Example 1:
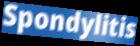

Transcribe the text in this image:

Spondylitis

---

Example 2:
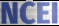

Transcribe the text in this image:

NCEI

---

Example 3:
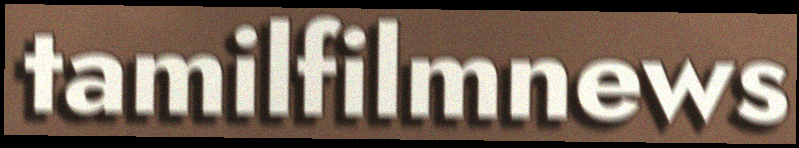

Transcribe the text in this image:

tamilfilmnews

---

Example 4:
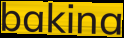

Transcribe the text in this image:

bakina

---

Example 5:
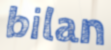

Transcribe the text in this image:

bilan